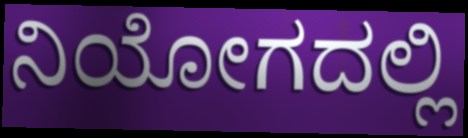
ನಿಯೋಗದಲ್ಲಿ